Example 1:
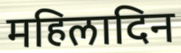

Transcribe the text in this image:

महिलादिन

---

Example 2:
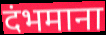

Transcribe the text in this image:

दंभमाना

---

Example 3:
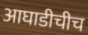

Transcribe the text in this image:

आघाडीचीच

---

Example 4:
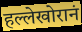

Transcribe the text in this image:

हल्लेखोरानं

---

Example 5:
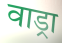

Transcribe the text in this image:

वाड्रा